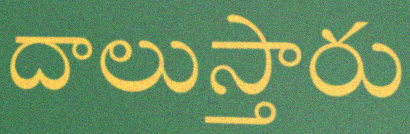
దాలుస్తారు